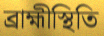
ব্রাহ্মীস্থিতি